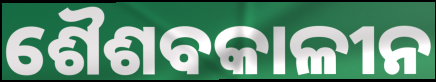
ଶୈଶବକାଳୀନ